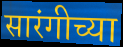
सारंगीच्या